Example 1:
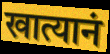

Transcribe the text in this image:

खात्यानं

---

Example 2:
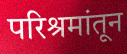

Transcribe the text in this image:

परिश्रमांतून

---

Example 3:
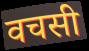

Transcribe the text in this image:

वचसी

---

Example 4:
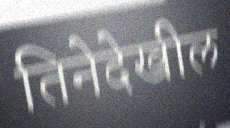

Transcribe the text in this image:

तिनेदेखील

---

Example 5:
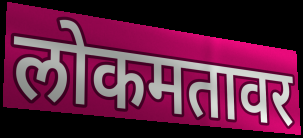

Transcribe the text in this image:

लोकमतावर